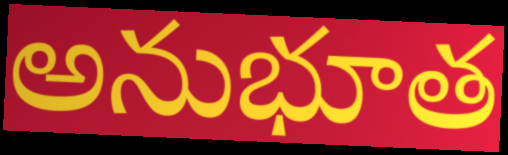
అనుభూత